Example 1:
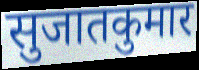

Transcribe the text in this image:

सुजातकुमार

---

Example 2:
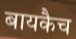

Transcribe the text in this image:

बायकैच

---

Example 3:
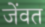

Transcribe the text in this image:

जेंवत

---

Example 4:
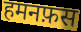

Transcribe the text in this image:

हमनफ़स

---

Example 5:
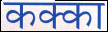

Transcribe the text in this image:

कक्का